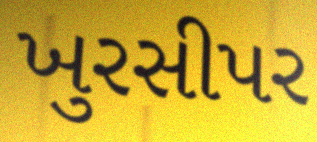
ખુરસીપર